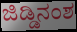
ಜಿಡ್ಡಿನಂಶ